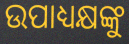
ଉପାଧ୍ୟକ୍ଷଙ୍କୁ